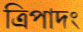
ত্রিপাদং